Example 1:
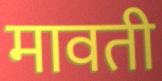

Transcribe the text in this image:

मावती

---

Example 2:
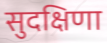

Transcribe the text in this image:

सुदक्षिणा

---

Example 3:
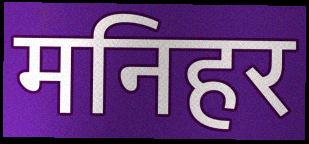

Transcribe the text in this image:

मनिहर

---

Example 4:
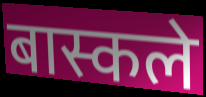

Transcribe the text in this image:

बास्कले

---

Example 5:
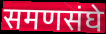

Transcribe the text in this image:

समणसंघे